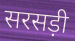
सरसड़ी